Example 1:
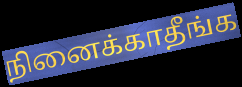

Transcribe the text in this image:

நினைக்காதீங்க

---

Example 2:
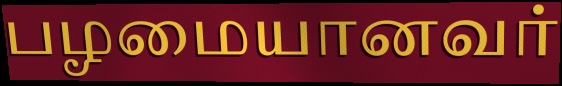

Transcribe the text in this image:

பழமையானவர்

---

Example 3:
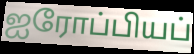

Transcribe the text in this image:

ஐரோப்பியப்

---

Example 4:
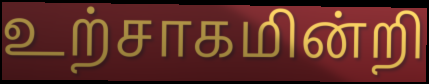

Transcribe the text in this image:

உற்சாகமின்றி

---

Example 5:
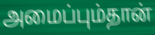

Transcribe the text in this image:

அமைப்பும்தான்